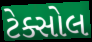
ટેક્સોલ